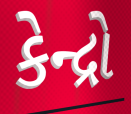
કેન્દ્રો